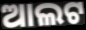
ଆଲଟ